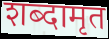
शब्दामृत